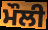
ਮੌਲੀ